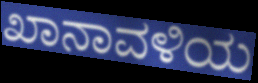
ಖಾನಾವಳಿಯ